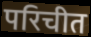
परिचीत